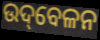
ଉଦ୍‌ବେଳନ